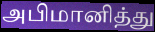
அபிமானித்து